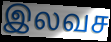
இலவச